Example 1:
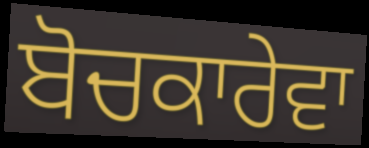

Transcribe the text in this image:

ਬੋਚਕਾਰੇਵਾ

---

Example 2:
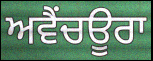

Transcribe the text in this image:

ਅਵੈਂਚਊਰਾ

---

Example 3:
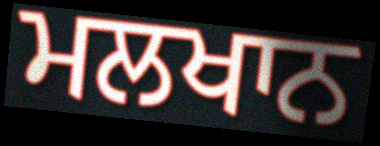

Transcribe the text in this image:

ਮਲਖਾਨ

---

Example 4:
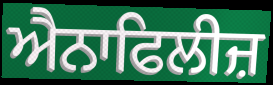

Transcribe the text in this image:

ਐਨਾਫਿਲੀਜ਼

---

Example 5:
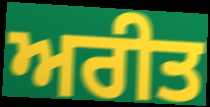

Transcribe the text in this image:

ਅਰੀਤ